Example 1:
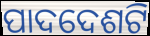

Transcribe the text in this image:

ପାଦଦେଶଟି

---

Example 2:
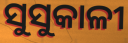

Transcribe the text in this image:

ସୁସୁକାଳୀ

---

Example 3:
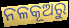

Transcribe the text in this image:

ନଳକୂଅରୁ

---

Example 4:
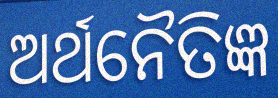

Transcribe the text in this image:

ଅର୍ଥନୈତିଜ୍ଞ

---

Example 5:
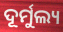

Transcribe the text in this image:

ଦୂର୍ମୁଲ୍ୟ